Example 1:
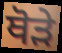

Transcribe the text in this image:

ਥੋਡ਼ੇ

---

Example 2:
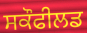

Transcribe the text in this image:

ਸਕੌਫੀਲਡ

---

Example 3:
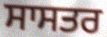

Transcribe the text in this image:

ਸਾਸਤਰ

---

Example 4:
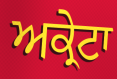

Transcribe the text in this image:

ਅਕ੍ਰੇਟਾ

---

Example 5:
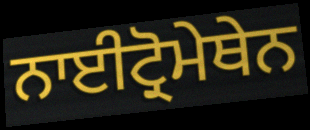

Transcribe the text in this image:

ਨਾਈਟ੍ਰੋਮੇਥੇਨ